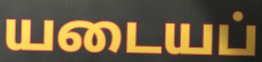
யடையப்